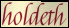
holdeth